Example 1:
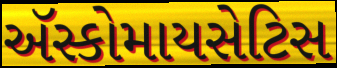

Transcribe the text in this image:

ઍસ્કોમાયસેટિસ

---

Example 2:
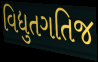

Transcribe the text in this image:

વિદ્યુતગતિજ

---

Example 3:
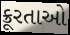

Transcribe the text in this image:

ક્રૂરતાઓ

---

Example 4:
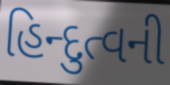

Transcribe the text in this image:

હિન્દુત્વની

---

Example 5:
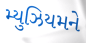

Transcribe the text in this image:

મ્યુઝિયમને